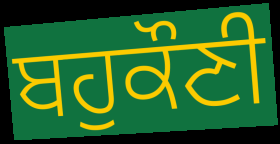
ਬਹੁਕੌਣੀ